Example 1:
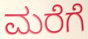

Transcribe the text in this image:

ಮರೆಗೆ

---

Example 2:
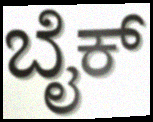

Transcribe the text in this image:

ಬೈಕ್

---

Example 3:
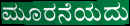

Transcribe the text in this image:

ಮೂರನೆಯದು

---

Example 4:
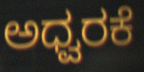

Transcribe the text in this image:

ಅಧ್ವರಕೆ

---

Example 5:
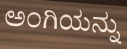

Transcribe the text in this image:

ಅಂಗಿಯನ್ನು